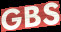
GBS